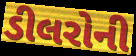
ડીલરોની